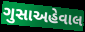
ગુસાઅહેવાલ